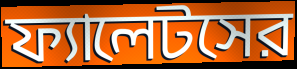
ফ্যালেটসের